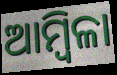
ଆମ୍ବିଳା